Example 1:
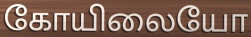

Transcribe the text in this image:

கோயிலையோ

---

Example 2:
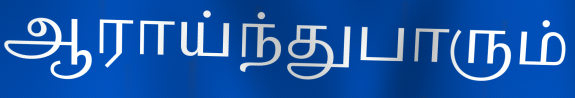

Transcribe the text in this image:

ஆராய்ந்துபாரும்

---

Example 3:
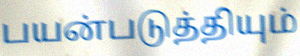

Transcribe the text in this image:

பயன்படுத்தியும்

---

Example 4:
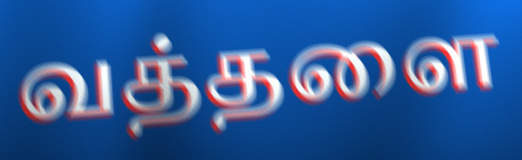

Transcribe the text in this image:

வத்தளை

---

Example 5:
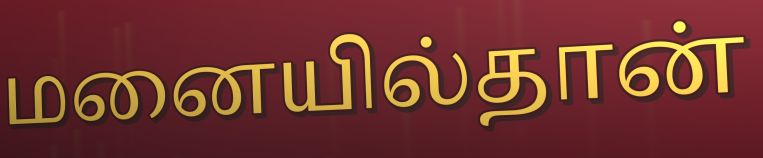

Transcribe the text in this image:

மனையில்தான்